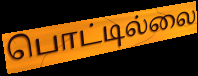
பொட்டில்லை